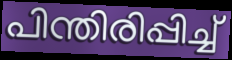
പിന്തിരിപ്പിച്ച്